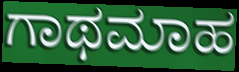
ಗಾಥಮಾಹ